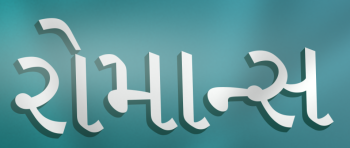
રોમાન્સ